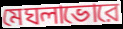
মেঘলাভোরে